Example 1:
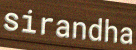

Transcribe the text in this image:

sirandha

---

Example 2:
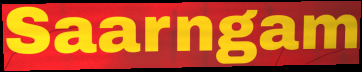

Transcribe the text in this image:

Saarngam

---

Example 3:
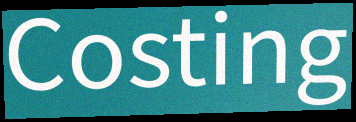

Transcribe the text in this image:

Costing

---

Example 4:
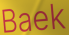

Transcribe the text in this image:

Baek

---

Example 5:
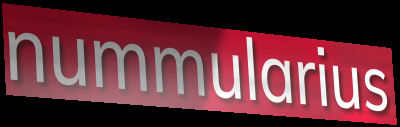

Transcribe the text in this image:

nummularius